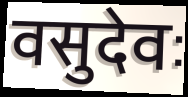
वसुदेवः